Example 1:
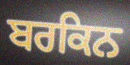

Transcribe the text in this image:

ਬਰਕਿਨ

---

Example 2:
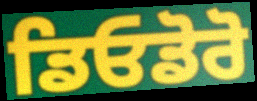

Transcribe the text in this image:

ਡਿਓਡੋਰੋ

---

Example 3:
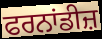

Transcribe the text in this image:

ਫਰਨਾਂਡੀਜ਼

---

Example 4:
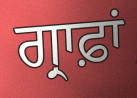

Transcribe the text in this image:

ਗ੍ਰਾਫ਼ਾਂ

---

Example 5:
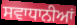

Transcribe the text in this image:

ਸਵਾਧਾਨੀਆਂ